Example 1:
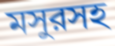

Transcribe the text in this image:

মসুরসহ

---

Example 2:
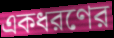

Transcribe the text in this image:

একধরণের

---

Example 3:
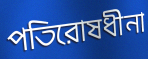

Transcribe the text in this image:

পতিরোষধীনা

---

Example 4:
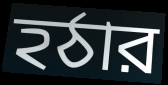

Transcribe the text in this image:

হঠার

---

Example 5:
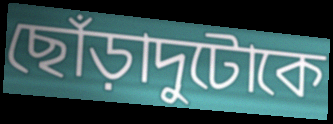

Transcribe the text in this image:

ছোঁড়াদুটোকে